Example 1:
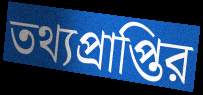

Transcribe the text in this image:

তথ্যপ্রাপ্তির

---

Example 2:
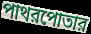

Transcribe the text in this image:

পাথরপোতার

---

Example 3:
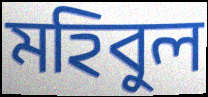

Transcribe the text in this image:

মহিবুল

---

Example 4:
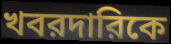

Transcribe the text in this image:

খবরদারিকে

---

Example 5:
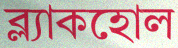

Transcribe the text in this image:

ব্ল্যাকহোল